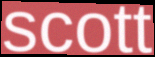
scott